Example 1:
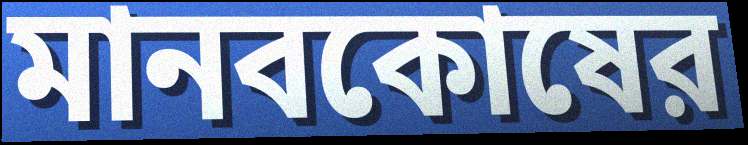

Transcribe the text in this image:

মানবকোষের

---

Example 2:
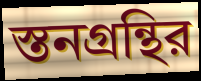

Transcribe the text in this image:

স্তনগ্রন্থির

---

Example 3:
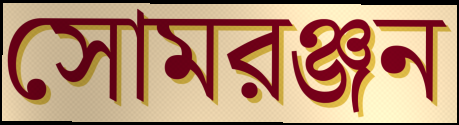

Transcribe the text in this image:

সোমরঞ্জন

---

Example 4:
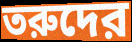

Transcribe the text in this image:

তরুদের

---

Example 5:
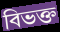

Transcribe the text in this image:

বিভক্ত